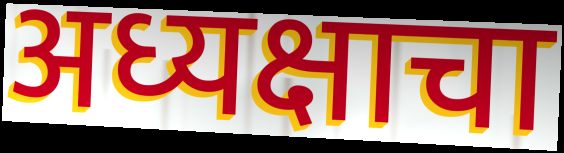
अध्यक्षाचा